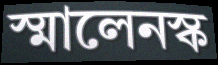
স্মালেনস্ক